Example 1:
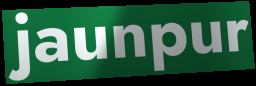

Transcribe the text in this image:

jaunpur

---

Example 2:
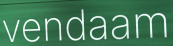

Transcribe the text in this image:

vendaam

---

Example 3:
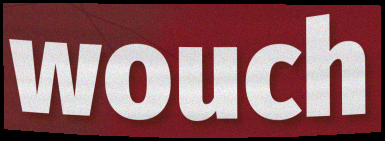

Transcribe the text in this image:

wouch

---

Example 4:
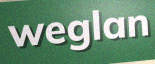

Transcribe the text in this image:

weglan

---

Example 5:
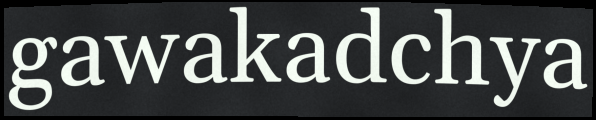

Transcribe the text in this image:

gawakadchya